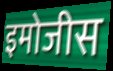
इमोजीस